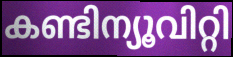
കണ്ടിന്യൂവിറ്റി